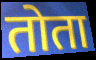
तोता